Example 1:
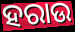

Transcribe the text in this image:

ହରାଉ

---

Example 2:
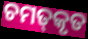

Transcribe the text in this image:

ଚମତ୍‍କୃତ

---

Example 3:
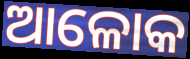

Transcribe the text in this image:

ଆଳୋକ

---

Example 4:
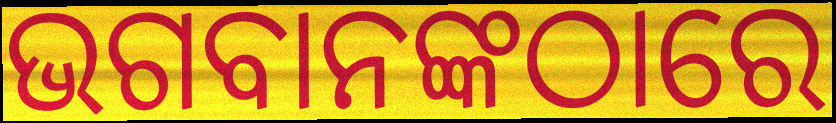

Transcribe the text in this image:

ଭଗବାନଙ୍କଠାରେ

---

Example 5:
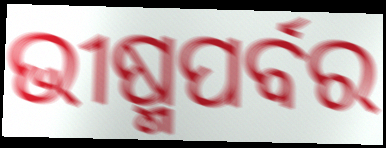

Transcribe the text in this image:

ଭୀଷ୍ମପର୍ବର